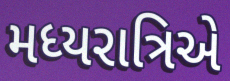
મધ્યરાત્રિએ